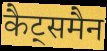
कैट्समैन